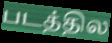
படத்தில